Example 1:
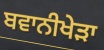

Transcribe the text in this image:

ਬਵਾਨੀਖੇੜਾ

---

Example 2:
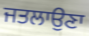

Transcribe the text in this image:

ਜਤਲਾਉਣਾ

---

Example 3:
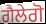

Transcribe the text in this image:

ਗੈਲੇਗੋ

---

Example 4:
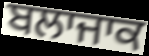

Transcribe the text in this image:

ਬਲਾਜਾਕ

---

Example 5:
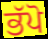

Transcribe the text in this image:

ਭੱਪੋ